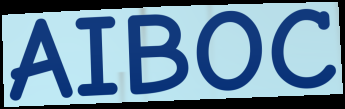
AIBOC